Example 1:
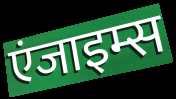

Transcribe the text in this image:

एंजाइम्‍स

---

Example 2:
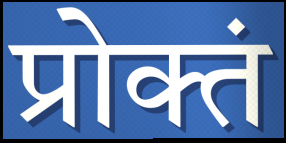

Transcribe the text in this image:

प्रोक्तं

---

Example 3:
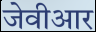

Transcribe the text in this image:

जेवीआर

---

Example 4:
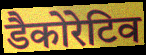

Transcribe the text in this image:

डैकोरेटिव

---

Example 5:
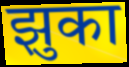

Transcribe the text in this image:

झुका